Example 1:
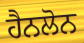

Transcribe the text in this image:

ਹੈਨਲੋਨ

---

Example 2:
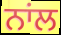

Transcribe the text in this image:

ਨਾਂਲ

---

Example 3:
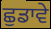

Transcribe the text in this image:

ਛੁਡਾਵੇ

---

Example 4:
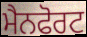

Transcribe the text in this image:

ਮੈਨਫੋਰਟ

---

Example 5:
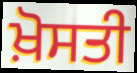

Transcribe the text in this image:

ਖ਼ੋਸਤੀ